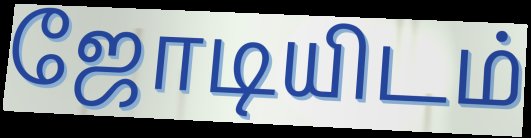
ஜோடியிடம்